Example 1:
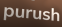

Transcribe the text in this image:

purush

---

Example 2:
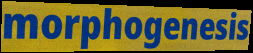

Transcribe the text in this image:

morphogenesis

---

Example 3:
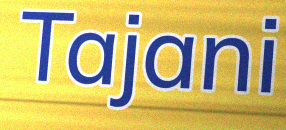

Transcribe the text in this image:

Tajani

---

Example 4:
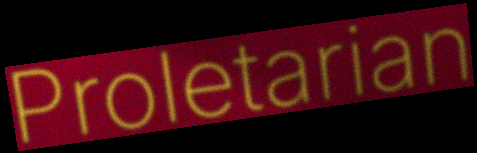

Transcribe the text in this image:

Proletarian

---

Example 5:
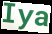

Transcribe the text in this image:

Iya